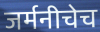
जर्मनीचेच